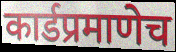
कार्डप्रमाणेच